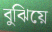
বুঝিয়ে